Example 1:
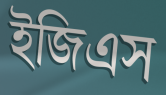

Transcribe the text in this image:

ইজিএস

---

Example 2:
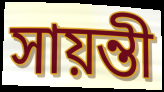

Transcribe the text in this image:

সায়ন্তী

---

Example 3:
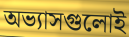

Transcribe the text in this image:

অভ্যাসগুলোই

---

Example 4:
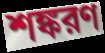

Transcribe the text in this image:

শঙ্করণ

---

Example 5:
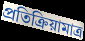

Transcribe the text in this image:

প্রতিক্রিয়ামাত্র